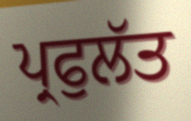
ਪ੍ਰਫੁਲੱਤ